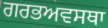
ਗਰਭਅਵਸਥਾ